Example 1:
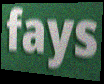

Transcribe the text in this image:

fays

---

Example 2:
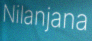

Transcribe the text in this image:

Nilanjana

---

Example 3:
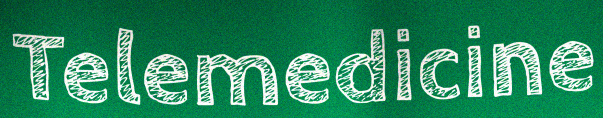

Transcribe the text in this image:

Telemedicine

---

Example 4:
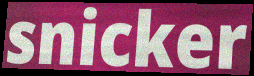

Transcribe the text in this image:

snicker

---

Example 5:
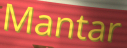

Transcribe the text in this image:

Mantar